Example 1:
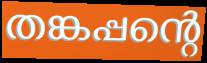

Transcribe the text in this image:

തങ്കപ്പന്റെ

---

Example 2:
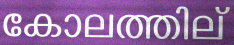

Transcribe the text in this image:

കോലത്തില്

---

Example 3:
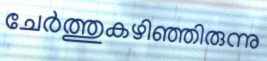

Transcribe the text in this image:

ചേർത്തുകഴിഞ്ഞിരുന്നു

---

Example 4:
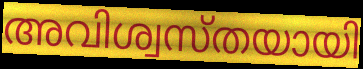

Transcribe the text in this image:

അവിശ്വസ്തയായി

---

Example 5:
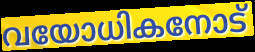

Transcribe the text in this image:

വയോധികനോട്